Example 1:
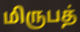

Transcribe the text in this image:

மிருபத்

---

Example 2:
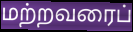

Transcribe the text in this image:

மற்றவரைப்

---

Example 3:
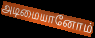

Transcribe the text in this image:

அடிமையானோம்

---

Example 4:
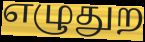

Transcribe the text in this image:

எழுதுற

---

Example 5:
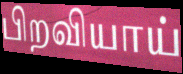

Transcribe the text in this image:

பிறவியாய்